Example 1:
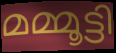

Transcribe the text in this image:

മമ്മൂട്ടി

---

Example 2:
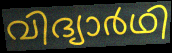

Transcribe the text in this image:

വിദ്യാർഥി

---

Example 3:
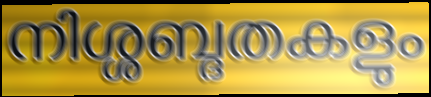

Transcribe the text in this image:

നിശ്ശബ്ദതകളും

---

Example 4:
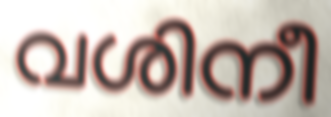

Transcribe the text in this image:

വശിനീ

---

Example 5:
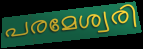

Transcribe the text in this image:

പരമേശ്വരി